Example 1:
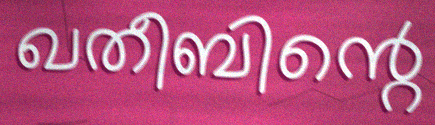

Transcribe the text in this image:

ഖതീബിന്റെ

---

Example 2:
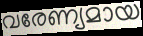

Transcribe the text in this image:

വരേണ്യമായ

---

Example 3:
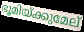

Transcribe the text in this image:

ഭൂമിയ്ക്കുമേല്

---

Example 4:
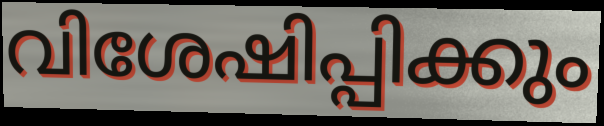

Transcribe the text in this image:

വിശേഷിപ്പിക്കും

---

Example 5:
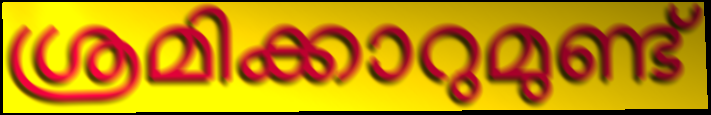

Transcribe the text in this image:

ശ്രമിക്കാറുമുണ്ട്